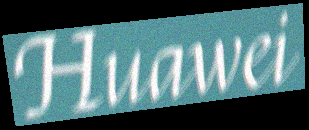
Huawei